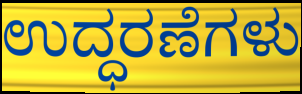
ಉದ್ಧರಣೆಗಳು